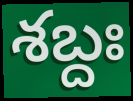
శబ్దః